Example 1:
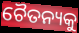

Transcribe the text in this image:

ଚୈତନ୍ୟକୁ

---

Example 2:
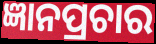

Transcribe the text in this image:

ଜ୍ଞାନପ୍ରଚାର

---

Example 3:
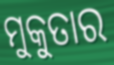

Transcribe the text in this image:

ମୁକୁତାର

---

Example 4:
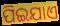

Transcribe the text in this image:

ପିଇଯାଏ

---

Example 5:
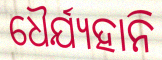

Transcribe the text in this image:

ଧୈର୍ଯ୍ୟହାନି